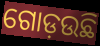
ଗୋଡ଼ଉଛି